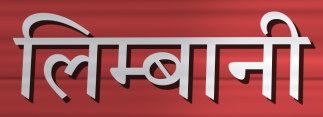
लिम्बानी